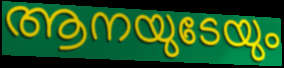
ആനയുടേയും